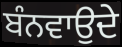
ਬੰਨਵਾਉਦੇ